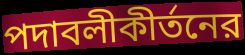
পদাবলীকীর্তনের